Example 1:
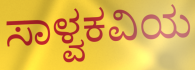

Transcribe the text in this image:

ಸಾಳ್ವಕವಿಯ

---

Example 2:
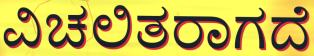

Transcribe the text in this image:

ವಿಚಲಿತರಾಗದೆ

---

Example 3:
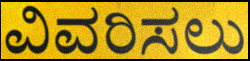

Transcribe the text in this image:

ವಿವರಿಸಲು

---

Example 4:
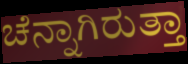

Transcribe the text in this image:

ಚೆನ್ನಾಗಿರುತ್ತಾ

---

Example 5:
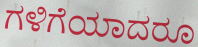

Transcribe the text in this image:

ಗಳಿಗೆಯಾದರೂ